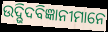
ଉଦ୍ଭିଦବିଜ୍ଞାନୀମାନେ